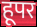
हूपर